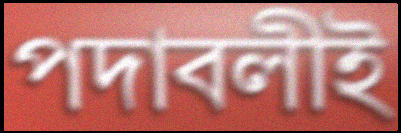
পদাবলীই